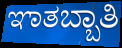
ಞಾತಬ್ಬಾತಿ